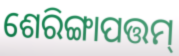
ଶେରିଙ୍ଗାପତ୍ତମ୍